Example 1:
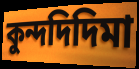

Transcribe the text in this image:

কুন্দদিদিমা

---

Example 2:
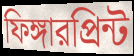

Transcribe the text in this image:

ফিঙ্গারপ্রিন্ট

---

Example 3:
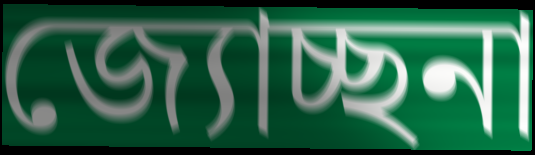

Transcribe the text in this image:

জ্যোচ্ছনা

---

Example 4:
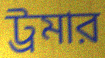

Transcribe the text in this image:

ট্রমার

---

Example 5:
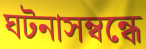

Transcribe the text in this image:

ঘটনাসম্বন্ধে